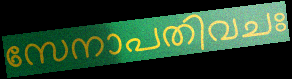
സേനാപതിവചഃ